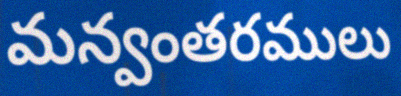
మన్వంతరములు